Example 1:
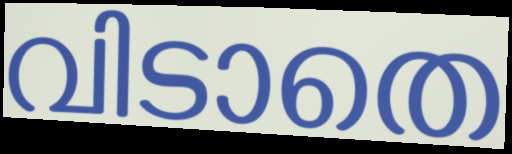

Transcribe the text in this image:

വിടാതെ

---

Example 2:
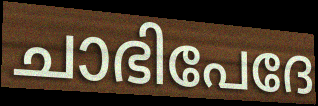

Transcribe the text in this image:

ചാഭിപേദേ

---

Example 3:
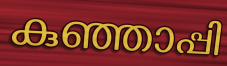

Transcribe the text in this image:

കുഞ്ഞാപ്പി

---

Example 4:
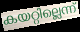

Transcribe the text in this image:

കയറ്റില്ലെന്ന്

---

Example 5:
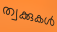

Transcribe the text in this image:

ത്വക്കുകൾ